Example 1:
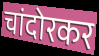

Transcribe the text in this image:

चांदोरकर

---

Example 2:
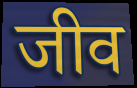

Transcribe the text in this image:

जीव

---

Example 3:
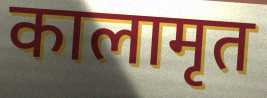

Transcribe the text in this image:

कालामृत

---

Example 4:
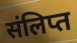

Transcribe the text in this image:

संलिप्त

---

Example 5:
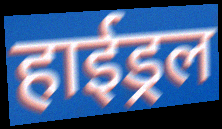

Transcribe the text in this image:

हाईड्रल